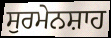
ਸੁਰਮੇਨਸ਼ਾਹ